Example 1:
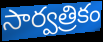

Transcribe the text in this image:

సార్వత్రికం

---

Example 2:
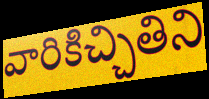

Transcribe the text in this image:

వారికిచ్చితిని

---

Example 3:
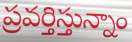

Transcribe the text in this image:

ప్రవర్తిస్తున్నాం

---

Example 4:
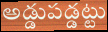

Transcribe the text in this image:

అడ్డుపడ్డట్టు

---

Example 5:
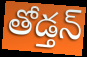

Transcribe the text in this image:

తోడ్తన్